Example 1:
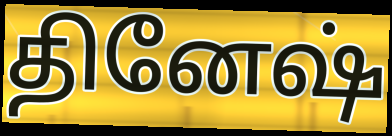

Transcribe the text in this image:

தினேஷ்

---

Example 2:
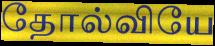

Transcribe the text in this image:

தோல்வியே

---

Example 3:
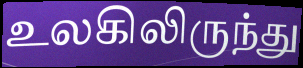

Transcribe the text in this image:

உலகிலிருந்து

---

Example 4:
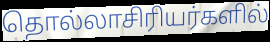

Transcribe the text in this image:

தொல்லாசிரியர்களில்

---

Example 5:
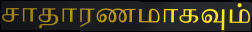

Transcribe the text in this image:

சாதாரணமாகவும்